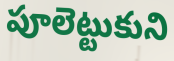
పూలెట్టుకుని